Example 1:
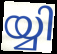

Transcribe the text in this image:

യ്യി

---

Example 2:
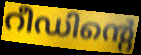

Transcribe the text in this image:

റീഡിന്റെ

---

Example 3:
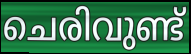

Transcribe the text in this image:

ചെരിവുണ്ട്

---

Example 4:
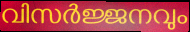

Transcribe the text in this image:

വിസർജ്ജനവും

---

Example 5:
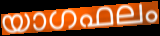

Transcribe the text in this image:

യാഗഫലം